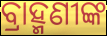
ବ୍ରାହ୍ମଣୀଙ୍କ